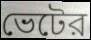
ভেটের